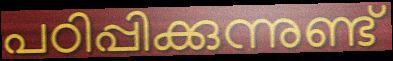
പഠിപ്പിക്കുന്നുണ്ട്